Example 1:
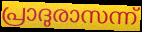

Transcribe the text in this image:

പ്രാദുരാസന്ന്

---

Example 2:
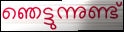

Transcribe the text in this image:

ഞെട്ടുന്നുണ്ട്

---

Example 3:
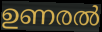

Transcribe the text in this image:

ഉണരൽ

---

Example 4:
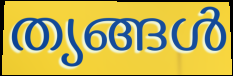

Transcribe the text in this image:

ത്യങ്ങൾ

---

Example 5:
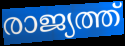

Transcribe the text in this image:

രാജ്യത്ത്